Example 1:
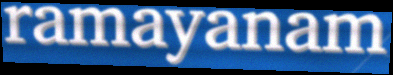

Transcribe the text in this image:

ramayanam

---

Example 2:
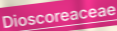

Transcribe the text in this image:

Dioscoreaceae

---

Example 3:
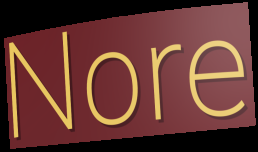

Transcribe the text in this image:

Nore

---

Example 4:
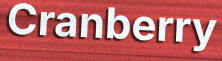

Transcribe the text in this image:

Cranberry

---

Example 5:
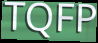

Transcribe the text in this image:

TQFP